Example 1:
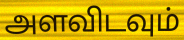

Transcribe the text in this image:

அளவிடவும்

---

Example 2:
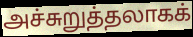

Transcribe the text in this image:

அச்சுறுத்தலாகக்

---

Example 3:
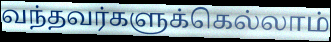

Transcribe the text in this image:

வந்தவர்களுக்கெல்லாம்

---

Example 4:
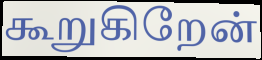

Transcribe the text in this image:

கூறுகிறேன்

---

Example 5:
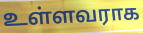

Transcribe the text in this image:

உள்ளவராக